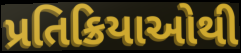
પ્રતિક્રિયાઓથી